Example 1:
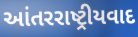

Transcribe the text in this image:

આંતરરાષ્ટ્રીયવાદ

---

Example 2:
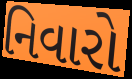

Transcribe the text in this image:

નિવારો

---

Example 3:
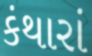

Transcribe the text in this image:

કંથારાં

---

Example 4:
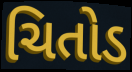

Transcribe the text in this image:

ચિતોડ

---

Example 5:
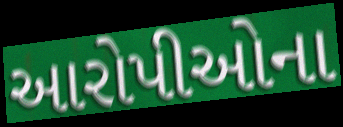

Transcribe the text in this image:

આરોપીઓના